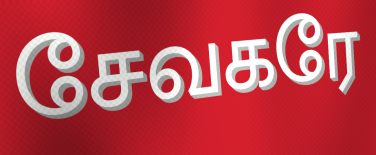
சேவகரே